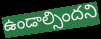
ఉండాల్సిందని